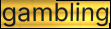
gambling